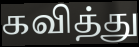
கவித்து